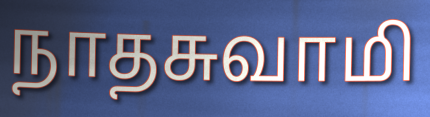
நாதசுவாமி